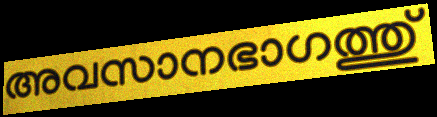
അവസാനഭാഗത്തു്